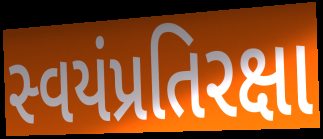
સ્વયંપ્રતિરક્ષા